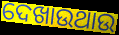
ଦେଖାଉଥାଉ